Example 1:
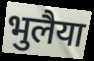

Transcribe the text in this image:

भुलैया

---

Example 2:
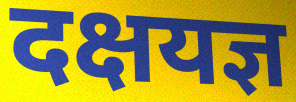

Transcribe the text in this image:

दक्षयज्ञ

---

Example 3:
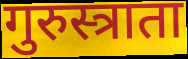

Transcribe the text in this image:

गुरुस्त्राता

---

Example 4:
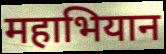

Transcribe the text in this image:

महाभियान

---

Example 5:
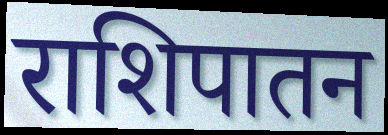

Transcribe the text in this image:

राशिपातन